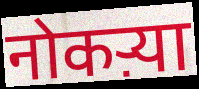
नोकऱ्‍या